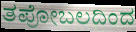
ತಪೋಬಲದಿಂದ